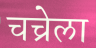
चच्रेला